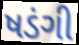
ષડંગી